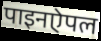
पाइनऐपल